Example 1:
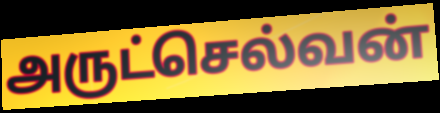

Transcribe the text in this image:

அருட்செல்வன்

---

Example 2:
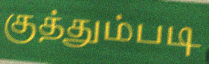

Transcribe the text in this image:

குத்தும்படி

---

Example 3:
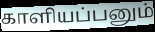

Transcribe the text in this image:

காளியப்பனும்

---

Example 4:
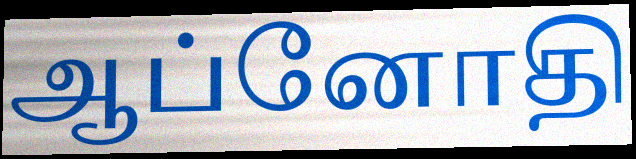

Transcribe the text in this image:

ஆப்னோதி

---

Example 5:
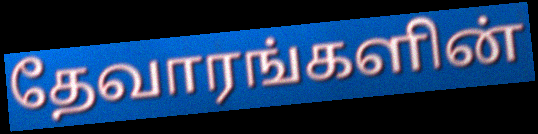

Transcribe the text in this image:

தேவாரங்களின்